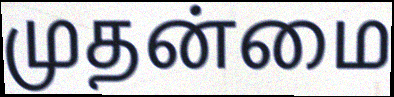
முதன்மை